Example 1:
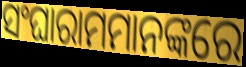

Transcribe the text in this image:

ସଂଘାରାମମାନଙ୍କରେ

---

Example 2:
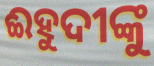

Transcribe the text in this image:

ଈହୁଦୀଙ୍କୁ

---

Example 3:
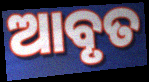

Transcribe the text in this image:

ଆବୃତ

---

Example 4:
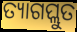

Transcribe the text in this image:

ତ୍ୟାଗପ୍ଲୁତ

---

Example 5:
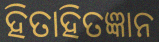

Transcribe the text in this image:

ହିତାହିତଜ୍ଞାନ